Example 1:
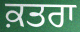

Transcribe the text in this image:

ਕ਼ਤਰਾ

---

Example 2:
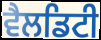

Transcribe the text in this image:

ਵੈਲਡਿਟੀ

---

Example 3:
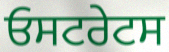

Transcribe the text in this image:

ਓਸਟਰੇਟਸ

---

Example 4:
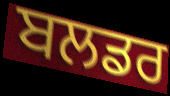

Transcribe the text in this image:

ਬਲਡਰ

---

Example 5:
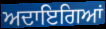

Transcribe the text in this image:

ਅਦਾਇਗਿਆਂ